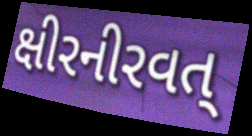
ક્ષીરનીરવત્